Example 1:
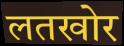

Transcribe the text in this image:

लतखोर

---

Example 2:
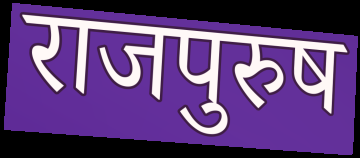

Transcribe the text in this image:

राजपुरुष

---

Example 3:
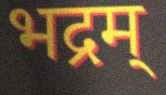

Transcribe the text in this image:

भद्रम्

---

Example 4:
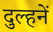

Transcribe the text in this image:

दुल्हनें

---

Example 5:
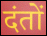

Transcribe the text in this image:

दंतों